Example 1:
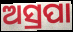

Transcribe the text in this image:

ଅସ୍ରପା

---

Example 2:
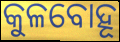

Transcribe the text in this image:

କୁଳବୋହୂ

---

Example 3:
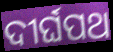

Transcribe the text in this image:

ଦୀର୍ଘପଥ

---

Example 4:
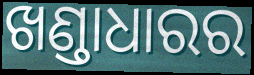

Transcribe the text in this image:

ଖଣ୍ଡାଧାରର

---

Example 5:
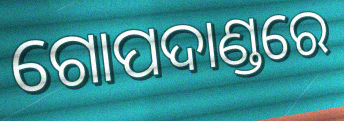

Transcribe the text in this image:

ଗୋପଦାଣ୍ଡରେ